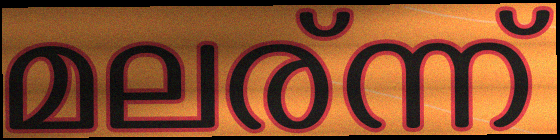
മലര്ന്ന്